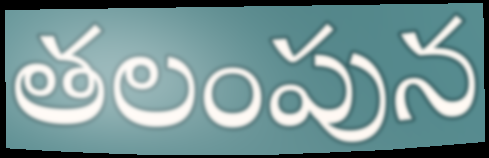
తలంపున